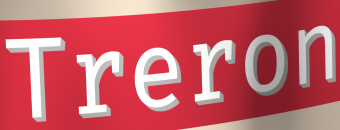
Treron